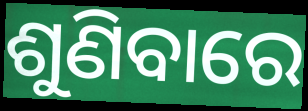
ଶୁଣିବାରେ